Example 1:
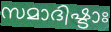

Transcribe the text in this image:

സമാദിഷ്ടാഃ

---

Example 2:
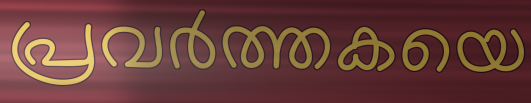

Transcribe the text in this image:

പ്രവർത്തകയെ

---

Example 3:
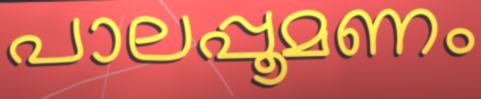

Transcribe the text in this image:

പാലപ്പൂമണം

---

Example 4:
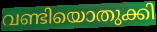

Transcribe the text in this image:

വണ്ടിയൊതുക്കി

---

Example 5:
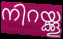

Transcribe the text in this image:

നിറയ്ക്കൂ